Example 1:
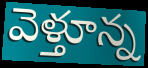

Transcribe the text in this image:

వెళ్తూన్న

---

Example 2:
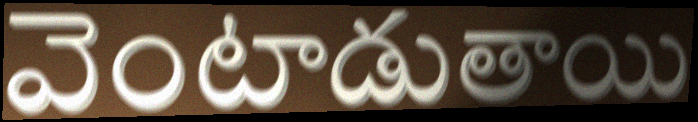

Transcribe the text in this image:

వెంటాడుతాయి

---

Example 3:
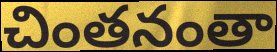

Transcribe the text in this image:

చింతనంతా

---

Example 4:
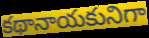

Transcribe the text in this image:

కథానాయకునిగా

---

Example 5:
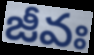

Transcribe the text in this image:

జీవః